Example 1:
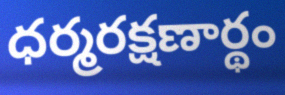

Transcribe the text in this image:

ధర్మరక్షణార్థం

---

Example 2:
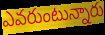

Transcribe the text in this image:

ఎవరుంటున్నారు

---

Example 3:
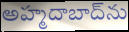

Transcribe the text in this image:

అహ్మదాబాద్‌ను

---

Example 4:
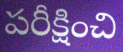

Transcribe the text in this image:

పరీక్షించి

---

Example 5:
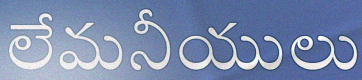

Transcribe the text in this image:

లేమనీయులు